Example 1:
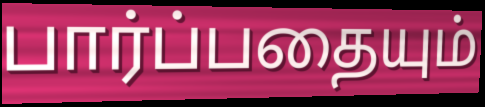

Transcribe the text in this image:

பார்ப்பதையும்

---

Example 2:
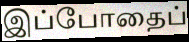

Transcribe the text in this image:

இப்போதைப்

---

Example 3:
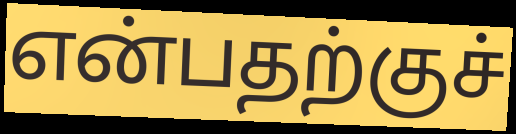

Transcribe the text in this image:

என்பதற்குச்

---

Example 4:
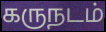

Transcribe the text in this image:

கருநடம்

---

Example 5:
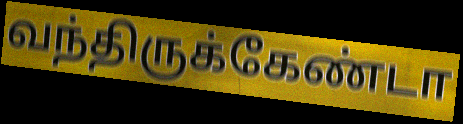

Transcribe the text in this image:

வந்திருக்கேண்டா